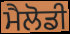
ਮੈਲੋਡੀ